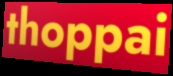
thoppai